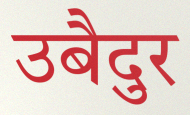
उबैदुर